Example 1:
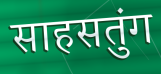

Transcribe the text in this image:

साहसतुंग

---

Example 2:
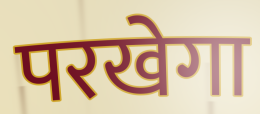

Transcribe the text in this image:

परखेगा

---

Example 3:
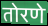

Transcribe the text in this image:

तोरणे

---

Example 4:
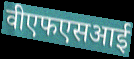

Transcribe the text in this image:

वीएफएसआई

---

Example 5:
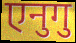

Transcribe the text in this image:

एनुगु